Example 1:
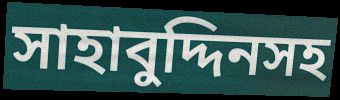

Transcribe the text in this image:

সাহাবুদ্দিনসহ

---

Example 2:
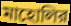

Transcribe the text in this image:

মাহোলির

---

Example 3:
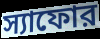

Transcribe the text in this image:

স্যাফোর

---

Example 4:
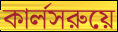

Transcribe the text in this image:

কার্লসরুয়ে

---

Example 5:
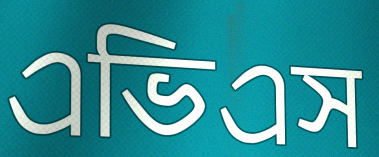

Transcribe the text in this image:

এভিএস